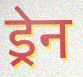
ड्रेन